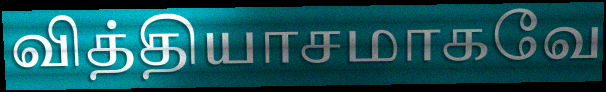
வித்தியாசமாகவே